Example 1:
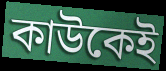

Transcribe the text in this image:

কাউকেই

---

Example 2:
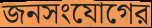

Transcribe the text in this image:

জনসংযোগের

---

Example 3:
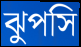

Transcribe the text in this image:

ঝুপসি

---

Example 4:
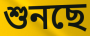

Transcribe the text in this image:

শুনছে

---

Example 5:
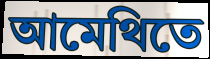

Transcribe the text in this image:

আমেথিতে